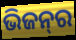
ଭିଜନ୍‌ର